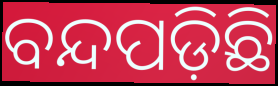
ବନ୍ଦପଡ଼ିଛି